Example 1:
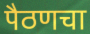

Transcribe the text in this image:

पैठणचा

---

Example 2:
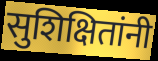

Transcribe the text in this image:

सुशिक्षितांनी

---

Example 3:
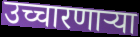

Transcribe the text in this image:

उच्चारणाऱ्या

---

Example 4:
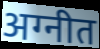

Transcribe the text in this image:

अग्नीत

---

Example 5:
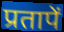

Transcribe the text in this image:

प्रतापें